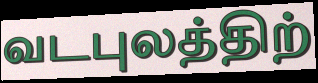
வடபுலத்திற்